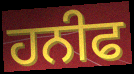
ਹਨੀਫ